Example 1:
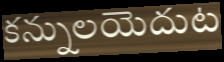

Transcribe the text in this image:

కన్నులయెదుట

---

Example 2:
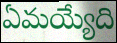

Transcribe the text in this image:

ఏమయ్యేది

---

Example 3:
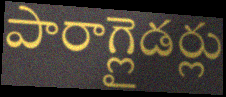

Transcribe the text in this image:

పారాగ్లైడర్లు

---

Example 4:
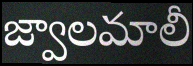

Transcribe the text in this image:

జ్వాలమాలీ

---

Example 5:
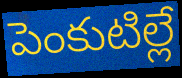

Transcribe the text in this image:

పెంకుటిల్లే